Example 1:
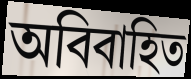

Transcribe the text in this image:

অবিবাহিত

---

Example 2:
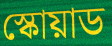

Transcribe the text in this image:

স্কোয়াড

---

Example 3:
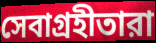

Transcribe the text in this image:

সেবাগ্রহীতারা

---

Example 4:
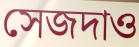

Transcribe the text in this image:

সেজদাও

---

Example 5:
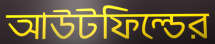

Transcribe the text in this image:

আউটফিল্ডের